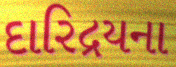
દારિદ્રયના